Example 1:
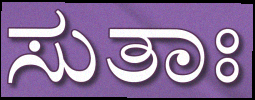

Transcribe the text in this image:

ಸುತಾಃ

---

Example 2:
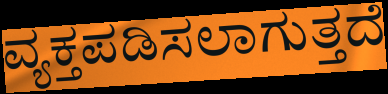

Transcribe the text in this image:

ವ್ಯಕ್ತಪಡಿಸಲಾಗುತ್ತದೆ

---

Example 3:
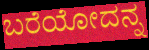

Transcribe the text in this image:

ಬರೆಯೋದನ್ನ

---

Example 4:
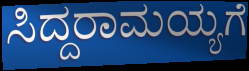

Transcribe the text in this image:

ಸಿದ್ದರಾಮಯ್ಯಗೆ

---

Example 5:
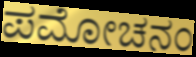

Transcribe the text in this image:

ಪಮೋಚನಂ